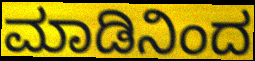
ಮಾಡಿನಿಂದ